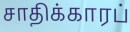
சாதிக்காரப்